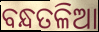
ବନ୍ଧତଳିଆ